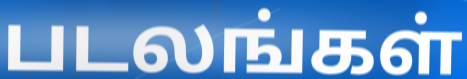
படலங்கள்